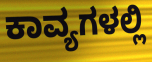
ಕಾವ್ಯಗಳಲ್ಲಿ